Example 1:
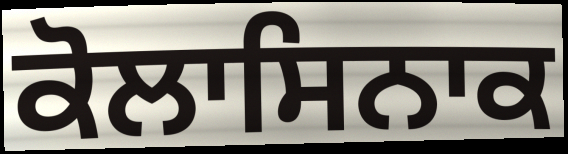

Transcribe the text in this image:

ਕੋਲਾਸਿਨਾਕ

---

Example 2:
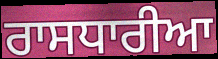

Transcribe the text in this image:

ਰਾਸਧਾਰੀਆ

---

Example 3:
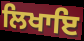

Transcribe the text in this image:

ਲਿਖਾਇ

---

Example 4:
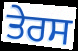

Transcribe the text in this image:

ਤੇਰਸ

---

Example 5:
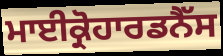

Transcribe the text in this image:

ਮਾਈਕ੍ਰੋਹਾਰਡਨੈੱਸ